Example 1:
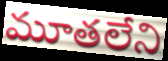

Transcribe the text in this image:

మూతలేని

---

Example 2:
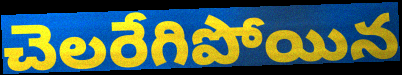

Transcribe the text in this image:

చెలరేగిపోయిన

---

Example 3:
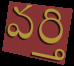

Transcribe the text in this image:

వర్తి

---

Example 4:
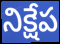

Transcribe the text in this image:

నిక్షేప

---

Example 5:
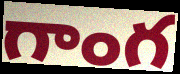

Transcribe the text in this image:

గాంగ